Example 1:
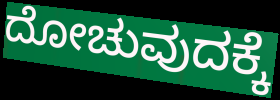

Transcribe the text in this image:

ದೋಚುವುದಕ್ಕೆ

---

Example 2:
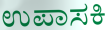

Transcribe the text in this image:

ಉಪಾಸಕಿ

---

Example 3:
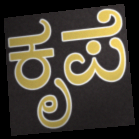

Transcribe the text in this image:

ಕೃಪೆ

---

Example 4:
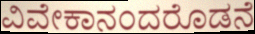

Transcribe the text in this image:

ವಿವೇಕಾನಂದರೊಡನೆ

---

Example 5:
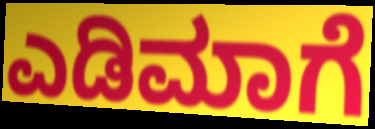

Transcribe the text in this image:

ಎಡಿಮಾಗೆ